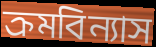
ক্ৰমবিন্যাস